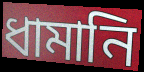
ধামানি